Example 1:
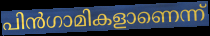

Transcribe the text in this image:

പിൻഗാമികളാണെന്ന്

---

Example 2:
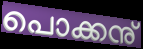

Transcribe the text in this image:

പൊക്കനു്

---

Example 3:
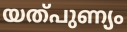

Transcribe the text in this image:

യത്പുണ്യം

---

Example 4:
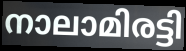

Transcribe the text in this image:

നാലാമിരട്ടി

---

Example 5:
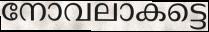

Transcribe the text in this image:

നോവലാകട്ടെ